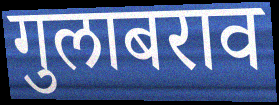
गुलाबराव